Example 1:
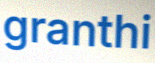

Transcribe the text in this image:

granthi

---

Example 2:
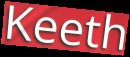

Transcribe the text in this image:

Keeth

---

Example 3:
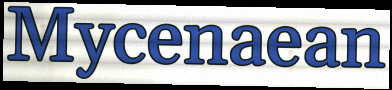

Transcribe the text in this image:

Mycenaean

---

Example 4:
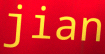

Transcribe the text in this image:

jian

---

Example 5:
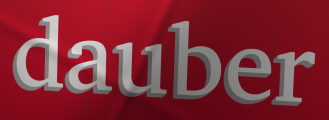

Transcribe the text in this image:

dauber